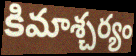
కిమాశ్చర్యం